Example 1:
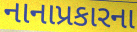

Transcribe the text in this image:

નાનાપ્રકારના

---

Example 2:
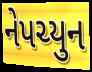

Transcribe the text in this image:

નેપચ્યુન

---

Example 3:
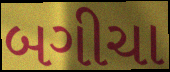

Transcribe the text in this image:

બગીચા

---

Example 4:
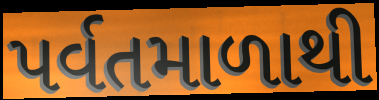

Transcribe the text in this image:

પર્વતમાળાથી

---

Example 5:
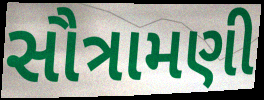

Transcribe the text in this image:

સૌત્રામણી